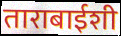
ताराबाईशी